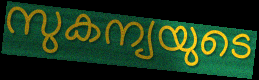
സുകന്യയുടെ